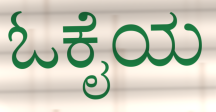
ಓಕೈಯ